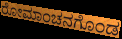
ರೋಮಾಂಚನಗೊಂಡ